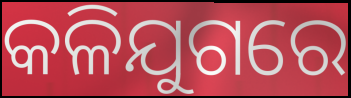
କଳିଯୁଗରେ